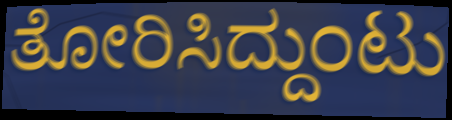
ತೋರಿಸಿದ್ದುಂಟು